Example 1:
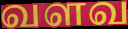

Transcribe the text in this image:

வளவ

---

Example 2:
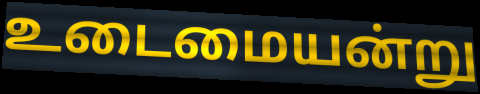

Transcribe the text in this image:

உடைமையன்று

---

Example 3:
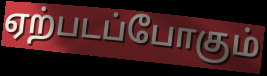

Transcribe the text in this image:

ஏற்படப்போகும்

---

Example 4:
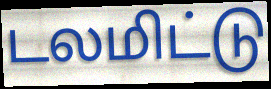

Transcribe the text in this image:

டலமிட்டு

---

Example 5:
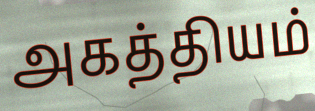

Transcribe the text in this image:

அகத்தியம்